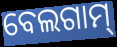
ବେଲଗାମ୍